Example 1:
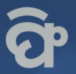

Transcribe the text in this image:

ଫି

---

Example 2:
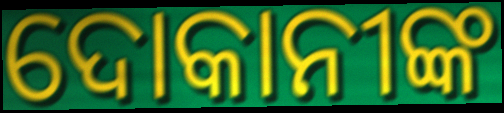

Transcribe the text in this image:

ଦୋକାନୀଙ୍କ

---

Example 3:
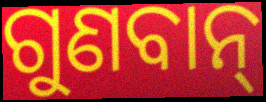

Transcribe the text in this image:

ଗୁଣବାନ୍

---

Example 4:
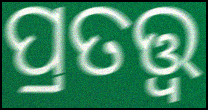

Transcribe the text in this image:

ପ୍ରତତ୍ତ୍ୱ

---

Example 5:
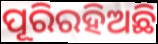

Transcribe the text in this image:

ପୂରିରହିଅଛି